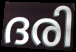
ദരി